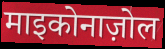
माइकोनाज़ोल